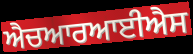
ਐਚਆਰਆਈਐਸ